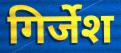
गिर्जेश